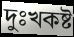
দুঃখকষ্ট